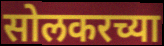
सोलकरच्या